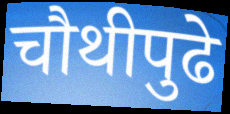
चौथीपुढे